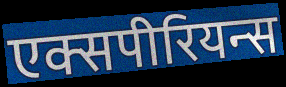
एक्सपीरियन्स